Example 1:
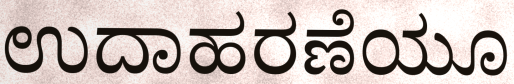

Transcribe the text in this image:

ಉದಾಹರಣೆಯೂ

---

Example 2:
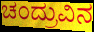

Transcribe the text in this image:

ಚಂದ್ರುವಿನ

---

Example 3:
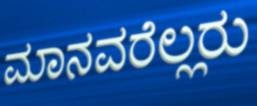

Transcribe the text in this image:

ಮಾನವರೆಲ್ಲರು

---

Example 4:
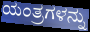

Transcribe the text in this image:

ಯಂತ್ರಗಳನ್ನು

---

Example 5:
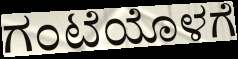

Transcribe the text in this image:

ಗಂಟೆಯೊಳಗೆ